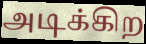
அடிக்கிற